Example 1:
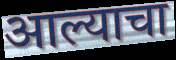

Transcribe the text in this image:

आल्‍याचा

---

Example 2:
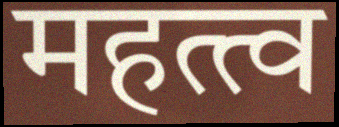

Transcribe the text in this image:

महत्‍त्‍व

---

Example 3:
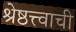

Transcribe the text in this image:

श्रेष्ठत्त्वाची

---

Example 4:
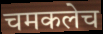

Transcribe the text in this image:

चमकलेच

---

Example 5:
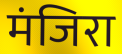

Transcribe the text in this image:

मंजिरा